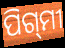
ପିଗ୍‌ମୀ